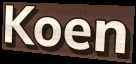
Koen